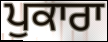
ਪੁਕਾਰਾ